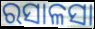
ରସାଳସା